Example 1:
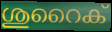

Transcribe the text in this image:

ശുറൈക്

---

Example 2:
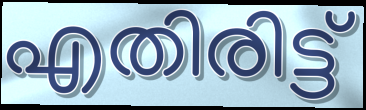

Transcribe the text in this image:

എതിരിട്ട്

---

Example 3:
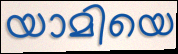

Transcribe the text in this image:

യാമിയെ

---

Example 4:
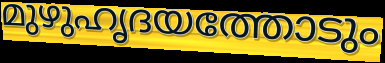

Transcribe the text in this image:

മുഴുഹൃദയത്തോടും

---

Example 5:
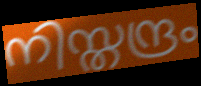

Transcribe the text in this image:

നിസ്തന്ദ്രം